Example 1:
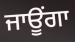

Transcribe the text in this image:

ਜਾਊਂਗਾ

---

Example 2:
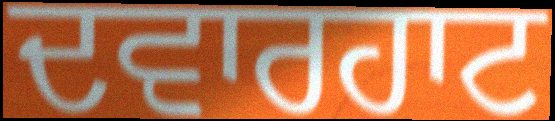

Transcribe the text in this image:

ਦਵਾਰਹਾਟ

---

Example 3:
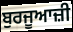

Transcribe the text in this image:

ਬੁਰਜੂਆਜ਼ੀ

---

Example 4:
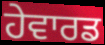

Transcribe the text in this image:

ਹੇਵਾਰਡ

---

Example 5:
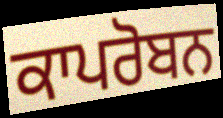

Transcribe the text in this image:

ਕਾਪਰੋਬਨ